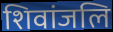
शिवांजलि